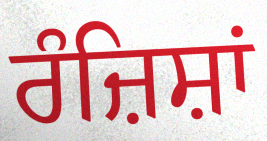
ਰੰਜ਼ਿਸ਼ਾਂ